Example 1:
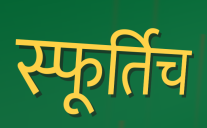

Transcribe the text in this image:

स्फूर्तिच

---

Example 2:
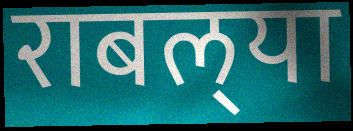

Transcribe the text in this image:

राबल्या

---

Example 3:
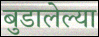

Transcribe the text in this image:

बुडालेल्या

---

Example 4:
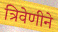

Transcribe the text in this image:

त्रिवेणीने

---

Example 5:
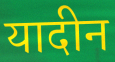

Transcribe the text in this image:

यादीन